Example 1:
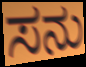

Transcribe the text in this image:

ಸನು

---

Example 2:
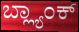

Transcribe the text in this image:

ಬ್ಲ್ಯಾಂಕ್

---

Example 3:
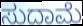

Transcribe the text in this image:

ಸುದಾಮೆ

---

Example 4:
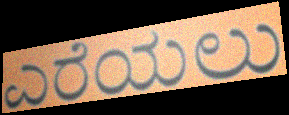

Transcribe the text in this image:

ಎರೆಯಲು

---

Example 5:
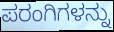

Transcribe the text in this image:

ಪರಂಗಿಗಳನ್ನು